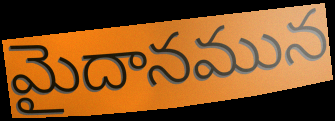
మైదానమున